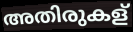
അതിരുകള്